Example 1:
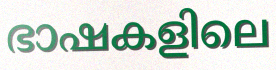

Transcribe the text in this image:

ഭാഷകളിലെ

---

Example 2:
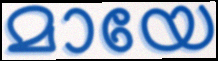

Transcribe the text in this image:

മായേ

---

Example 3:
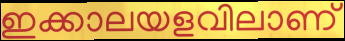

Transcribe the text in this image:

ഇക്കാലയളവിലാണ്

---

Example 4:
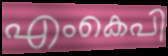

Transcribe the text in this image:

എംകെപി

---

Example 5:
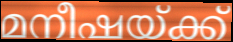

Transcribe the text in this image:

മനീഷയ്ക്ക്